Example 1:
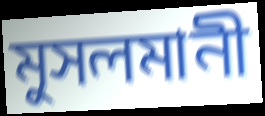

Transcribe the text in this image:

মুসলমানী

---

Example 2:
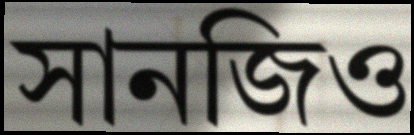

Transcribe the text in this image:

সানজিও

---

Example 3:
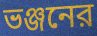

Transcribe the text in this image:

ভঞ্জনের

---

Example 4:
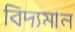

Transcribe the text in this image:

বিদ্যমান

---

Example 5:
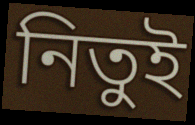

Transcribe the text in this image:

নিতুই